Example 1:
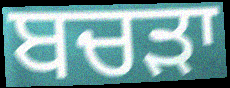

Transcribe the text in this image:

ਬਚੜਾ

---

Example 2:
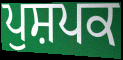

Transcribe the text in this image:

ਪੁਸ਼ਪਕ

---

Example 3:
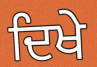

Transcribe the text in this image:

ਦਿਖੇ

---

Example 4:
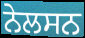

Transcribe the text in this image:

ਨੇਲਸਨ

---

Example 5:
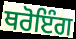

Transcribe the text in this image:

ਥਰੋਇੰਗ